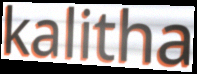
kalitha